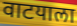
वाटयाला